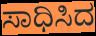
ಸಾಧಿಸಿದ